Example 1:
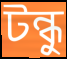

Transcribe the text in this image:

টন্ধু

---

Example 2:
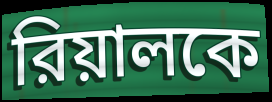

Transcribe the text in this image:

রিয়ালকে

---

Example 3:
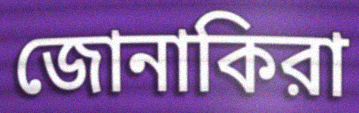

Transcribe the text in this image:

জোনাকিরা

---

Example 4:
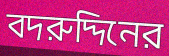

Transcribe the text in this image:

বদরুদ্দিনের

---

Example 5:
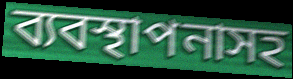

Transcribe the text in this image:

ব্যবস্থাপনাসহ